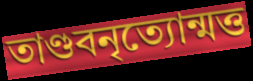
তাণ্ডবনৃত্যোন্মত্ত